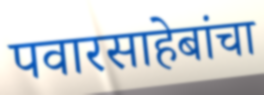
पवारसाहेबांचा